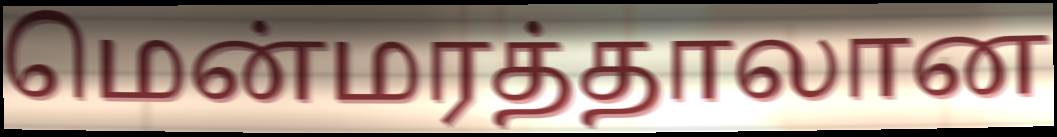
மென்மரத்தாலான